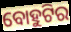
ବୋହୁଟିର